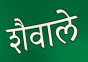
शैवाले